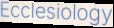
Ecclesiology